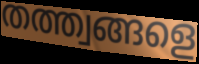
തത്ത്വങ്ങളെ